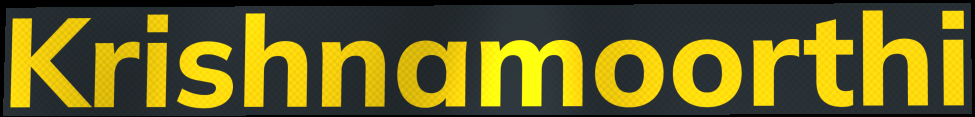
Krishnamoorthi